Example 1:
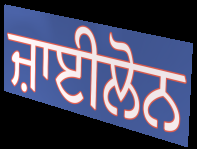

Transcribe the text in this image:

ਜ਼ਾਈਲੋਨ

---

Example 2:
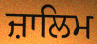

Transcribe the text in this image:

ਜ਼ਾਲਿਮ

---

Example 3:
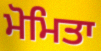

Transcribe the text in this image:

ਮੋਮਿਤਾ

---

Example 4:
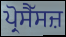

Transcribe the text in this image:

ਪ੍ਰੋਸੈੱਸਜ਼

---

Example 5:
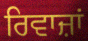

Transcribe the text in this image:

ਰਿਵਾਜ਼ਾਂ